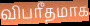
விபரீதமாக